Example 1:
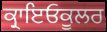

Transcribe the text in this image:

ਕ੍ਰਾਇਓਕੂਲਰ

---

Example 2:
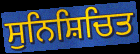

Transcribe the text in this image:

ਸੁਨਿਸ਼ਿਚਿਤ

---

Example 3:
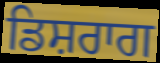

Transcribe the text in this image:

ਡਿਸ਼ਰਾਗ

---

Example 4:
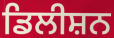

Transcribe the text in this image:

ਡਿਲੀਸ਼ਨ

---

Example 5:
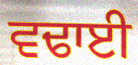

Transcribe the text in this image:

ਵਢਾਈ